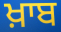
ਖ਼ਾਬ